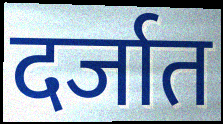
दर्जात